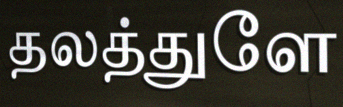
தலத்துளே